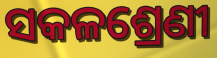
ସକଳଶ୍ରେଣୀ